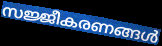
സജ്ജീകരണങ്ങൾ